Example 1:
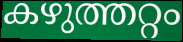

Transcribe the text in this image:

കഴുത്തറ്റം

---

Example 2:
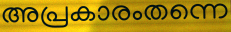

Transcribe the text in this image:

അപ്രകാരംതന്നെ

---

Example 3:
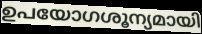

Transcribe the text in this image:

ഉപയോഗശൂന്യമായി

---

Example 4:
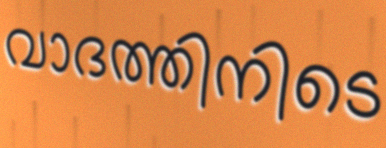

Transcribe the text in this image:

വാദത്തിനിടെ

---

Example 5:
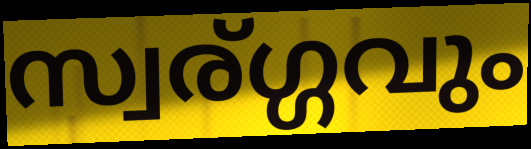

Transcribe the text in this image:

സ്വര്ഗ്ഗവും